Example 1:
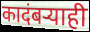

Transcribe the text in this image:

कादंबऱ्याही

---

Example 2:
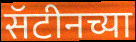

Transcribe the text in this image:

सॅटीनच्या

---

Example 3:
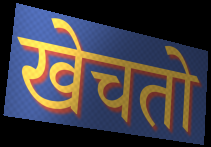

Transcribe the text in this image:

खेचतो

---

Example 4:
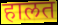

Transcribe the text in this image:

हालत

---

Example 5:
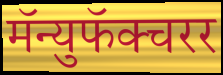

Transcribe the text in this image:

मॅन्युफॅक्चरर